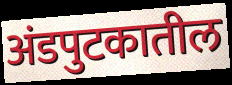
अंडपुटकातील